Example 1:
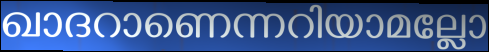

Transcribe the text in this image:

ഖാദറാണെന്നറിയാമല്ലോ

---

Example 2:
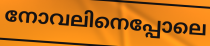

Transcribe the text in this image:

നോവലിനെപ്പോലെ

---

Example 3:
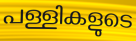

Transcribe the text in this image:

പള്ളികളുടെ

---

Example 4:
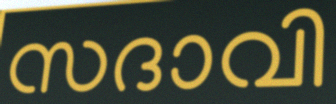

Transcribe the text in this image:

സദാവി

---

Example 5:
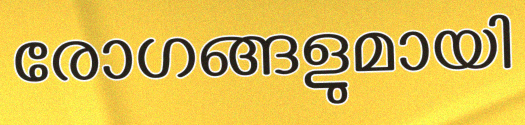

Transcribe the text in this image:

രോഗങ്ങളുമായി